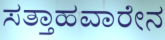
ಸತ್ತಾಹವಾರೇನ